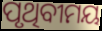
ପୃଥିବୀମୟ